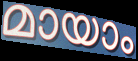
മായാം